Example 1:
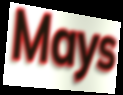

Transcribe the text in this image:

Mays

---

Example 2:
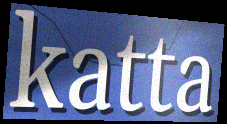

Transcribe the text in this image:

katta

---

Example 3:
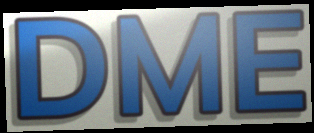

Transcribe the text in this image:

DME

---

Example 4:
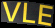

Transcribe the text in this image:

VLE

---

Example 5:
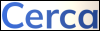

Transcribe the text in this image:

Cerca